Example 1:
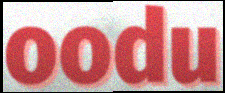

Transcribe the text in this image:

oodu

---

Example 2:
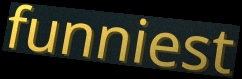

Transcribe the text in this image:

funniest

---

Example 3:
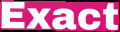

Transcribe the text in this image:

Exact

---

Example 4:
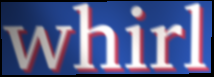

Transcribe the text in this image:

whirl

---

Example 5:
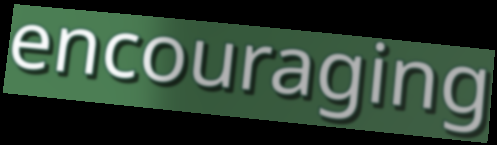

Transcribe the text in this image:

encouraging